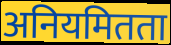
अनियमितता